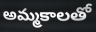
అమ్మకాలతో